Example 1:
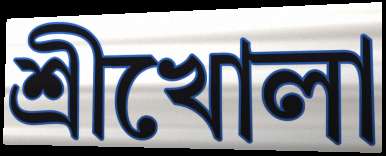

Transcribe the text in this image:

শ্রীখোলা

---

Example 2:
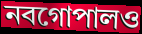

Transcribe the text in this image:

নবগোপালও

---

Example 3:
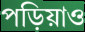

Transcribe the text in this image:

পড়িয়াও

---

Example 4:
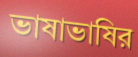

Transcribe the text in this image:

ভাষাভাষির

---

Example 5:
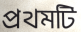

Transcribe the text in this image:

প্রথমটি